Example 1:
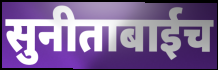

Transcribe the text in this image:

सुनीताबाईच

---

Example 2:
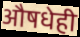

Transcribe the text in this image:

औषधेही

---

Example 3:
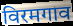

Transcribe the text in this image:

विरमगाव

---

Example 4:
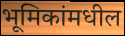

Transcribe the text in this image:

भूमिकांमधील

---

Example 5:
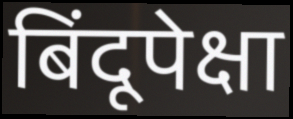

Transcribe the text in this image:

बिंदूपेक्षा